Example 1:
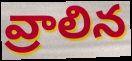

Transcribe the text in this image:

వ్రాలిన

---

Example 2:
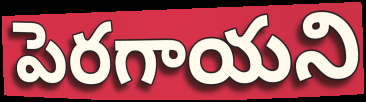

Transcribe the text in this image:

పెరగాయని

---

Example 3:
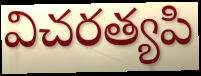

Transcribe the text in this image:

విచరత్యపి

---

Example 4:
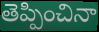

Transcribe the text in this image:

తెప్పించినా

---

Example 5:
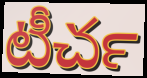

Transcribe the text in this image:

టీచర్‍